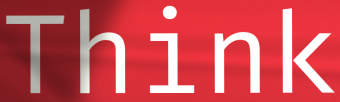
Think